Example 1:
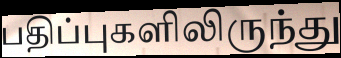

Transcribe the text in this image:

பதிப்புகளிலிருந்து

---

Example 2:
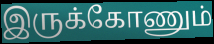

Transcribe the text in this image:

இருக்கோணும்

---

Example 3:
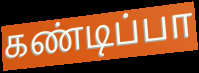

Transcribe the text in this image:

கண்டிப்பா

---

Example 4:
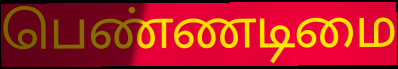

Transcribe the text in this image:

பெண்ணடிமை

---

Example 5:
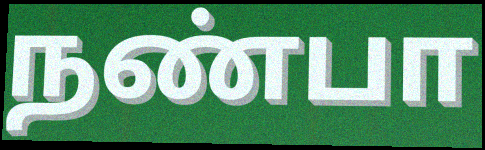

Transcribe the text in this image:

நண்பா